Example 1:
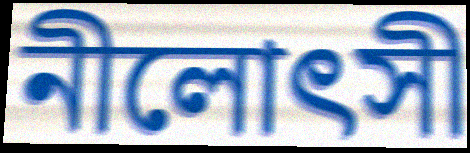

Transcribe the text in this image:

নীলোৎসী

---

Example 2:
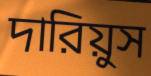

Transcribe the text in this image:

দারিয়ুস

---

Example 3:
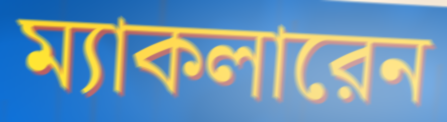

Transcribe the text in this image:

ম্যাকলারেন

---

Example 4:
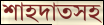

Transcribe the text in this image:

শাহদাতসহ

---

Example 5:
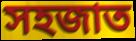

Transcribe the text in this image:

সহজাত